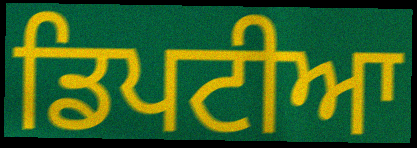
ਡਿਪਟੀਆ